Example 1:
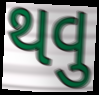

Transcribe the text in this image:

થવુ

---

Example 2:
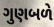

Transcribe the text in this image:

ગુણબળે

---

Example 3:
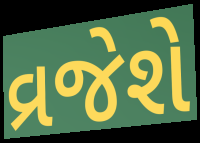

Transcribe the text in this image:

વ્રજેશે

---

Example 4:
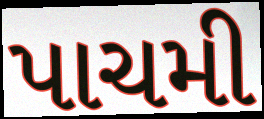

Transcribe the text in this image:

પાચમી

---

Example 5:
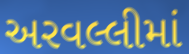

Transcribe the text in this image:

અરવલ્લીમાં